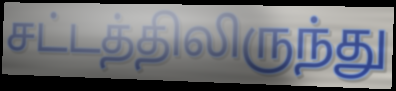
சட்டத்திலிருந்து